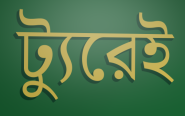
ট্যুরেই